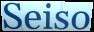
Seiso